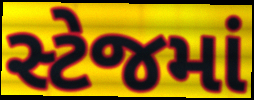
સ્ટેજમાં